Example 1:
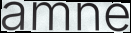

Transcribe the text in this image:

amne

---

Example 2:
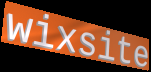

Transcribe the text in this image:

wixsite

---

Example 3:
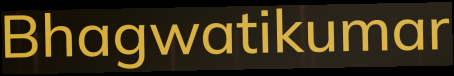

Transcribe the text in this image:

Bhagwatikumar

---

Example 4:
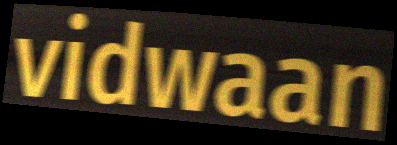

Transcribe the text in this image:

vidwaan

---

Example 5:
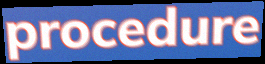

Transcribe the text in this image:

procedure